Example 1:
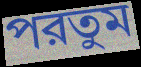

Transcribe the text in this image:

পরতুম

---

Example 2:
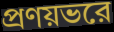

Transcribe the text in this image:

প্রণয়ভরে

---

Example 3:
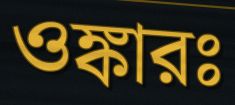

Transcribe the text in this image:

ওঙ্কারঃ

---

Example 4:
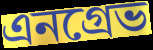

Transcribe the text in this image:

এনগ্রেভ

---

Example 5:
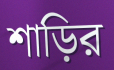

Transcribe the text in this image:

শাড়ির